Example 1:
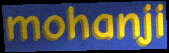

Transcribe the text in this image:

mohanji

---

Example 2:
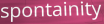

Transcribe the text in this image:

spontainity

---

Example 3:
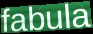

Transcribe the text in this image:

fabula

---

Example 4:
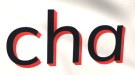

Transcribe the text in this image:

cha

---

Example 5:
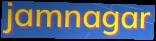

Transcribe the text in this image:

jamnagar